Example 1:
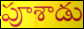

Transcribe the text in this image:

పూశాడు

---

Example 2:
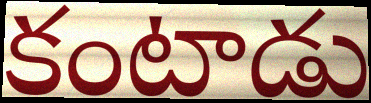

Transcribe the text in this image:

కంటాడు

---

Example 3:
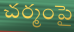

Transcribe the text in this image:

చర్మంపై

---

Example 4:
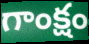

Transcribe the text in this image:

గాంక్షం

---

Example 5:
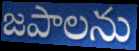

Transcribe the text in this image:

జపాలను